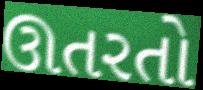
ઊતરતો